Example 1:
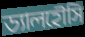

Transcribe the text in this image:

ড্যালহৌসি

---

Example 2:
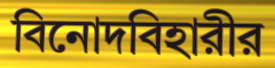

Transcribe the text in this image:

বিনোদবিহারীর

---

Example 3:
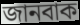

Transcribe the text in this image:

জানবাক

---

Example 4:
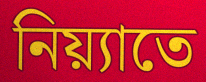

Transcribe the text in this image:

নিয়্যাতে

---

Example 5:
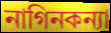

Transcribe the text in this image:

নাগিনকন্যা